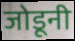
जोडूनी